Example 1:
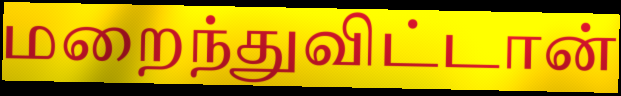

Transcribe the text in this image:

மறைந்துவிட்டான்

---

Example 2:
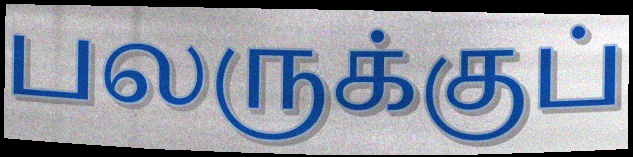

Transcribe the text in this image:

பலருக்குப்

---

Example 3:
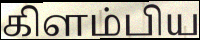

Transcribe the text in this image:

கிளம்பிய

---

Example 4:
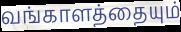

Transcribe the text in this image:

வங்காளத்தையும்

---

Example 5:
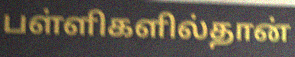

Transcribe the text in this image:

பள்ளிகளில்தான்